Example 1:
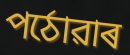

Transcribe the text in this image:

পঠোৱাৰ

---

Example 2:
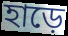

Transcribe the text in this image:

হাড়ে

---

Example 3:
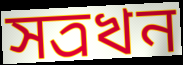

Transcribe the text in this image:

সত্ৰখন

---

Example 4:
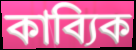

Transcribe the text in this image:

কাব্যিক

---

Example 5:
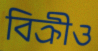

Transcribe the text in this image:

বিক্ৰীও